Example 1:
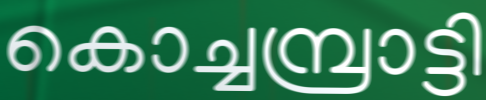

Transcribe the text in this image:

കൊച്ചമ്പ്രാട്ടി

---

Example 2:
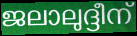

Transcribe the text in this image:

ജലാലുദ്ദീന്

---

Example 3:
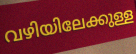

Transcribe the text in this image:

വഴിയിലേക്കുള്ള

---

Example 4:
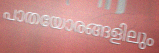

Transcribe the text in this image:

പാതയോരങ്ങളിലും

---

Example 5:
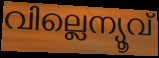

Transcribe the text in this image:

വില്ലെന്യൂവ്